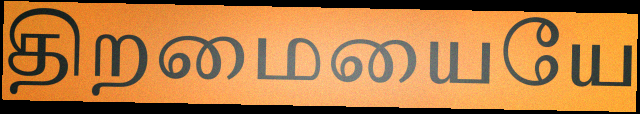
திறமையையே